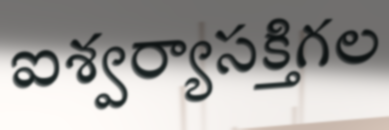
ఐశ్వర్యాసక్తిగల